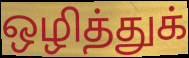
ஒழித்துக்